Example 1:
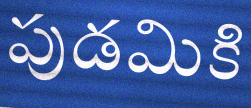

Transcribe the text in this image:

పుడమికి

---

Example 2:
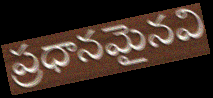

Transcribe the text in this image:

ప్రధానమైనవి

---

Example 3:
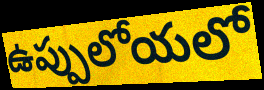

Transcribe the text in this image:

ఉప్పులోయలో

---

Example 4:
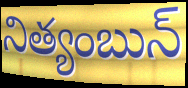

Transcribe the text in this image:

నిత్యంబున్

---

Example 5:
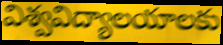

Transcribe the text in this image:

విశ్వవిద్యాలయాలకు